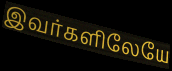
இவர்களிலேயே